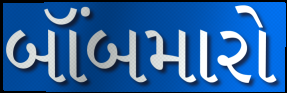
બૉંબમારો